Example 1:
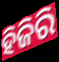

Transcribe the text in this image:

ହିଜିରି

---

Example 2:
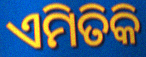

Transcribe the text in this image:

ଏମିତିକି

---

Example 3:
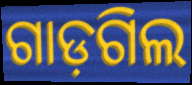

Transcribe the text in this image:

ଗାଡ଼ଗିଲ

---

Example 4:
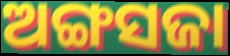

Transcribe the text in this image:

ଅଙ୍ଗସଜା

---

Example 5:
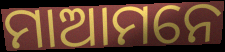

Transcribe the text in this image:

ମାଆମନେ